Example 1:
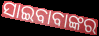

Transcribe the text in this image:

ସାଇବାବାଙ୍କର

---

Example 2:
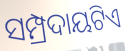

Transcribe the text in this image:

ସମ୍ପ୍ରଦାୟଟିଏ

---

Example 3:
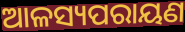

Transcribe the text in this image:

ଆଳସ୍ୟପରାୟଣ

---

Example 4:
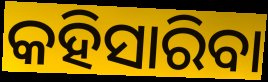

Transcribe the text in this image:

କହିସାରିବା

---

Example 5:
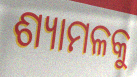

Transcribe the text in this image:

ଶ୍ୟାମଳକୁ